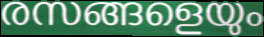
രസങ്ങളെയും